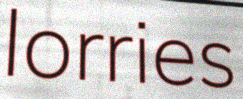
lorries